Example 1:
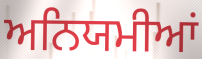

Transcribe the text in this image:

ਅਨਿਯਮੀਆਂ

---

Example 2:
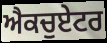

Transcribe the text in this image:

ਐਕਚੁਏਟਰ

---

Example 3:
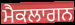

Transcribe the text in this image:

ਮੈਕਲਾਗਨ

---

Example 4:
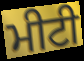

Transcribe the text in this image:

ਮੀਟੀ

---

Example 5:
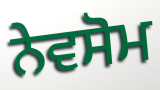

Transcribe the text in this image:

ਨੇਵਸੋਮ